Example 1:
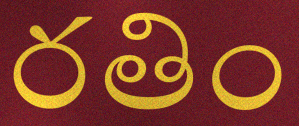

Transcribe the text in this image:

రతిం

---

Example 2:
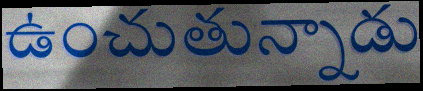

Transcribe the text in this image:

ఉంచుతున్నాడు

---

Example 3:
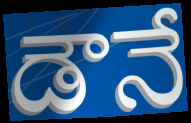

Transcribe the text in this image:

డౌనే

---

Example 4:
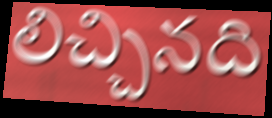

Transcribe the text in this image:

లిచ్చినది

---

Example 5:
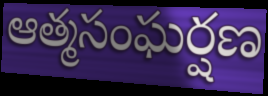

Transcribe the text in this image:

ఆత్మసంఘర్షణ